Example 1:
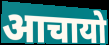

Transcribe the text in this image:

आचायो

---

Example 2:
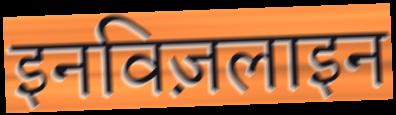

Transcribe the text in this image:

इनविज़लाइन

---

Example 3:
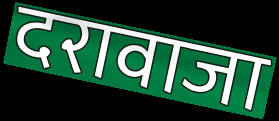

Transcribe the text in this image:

दरावाजा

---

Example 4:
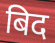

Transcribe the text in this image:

बिद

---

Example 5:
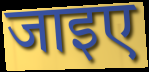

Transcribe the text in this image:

जाइए